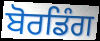
ਬੋਰਡਿੰਗ